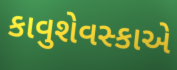
કાવુશેવસ્કાએ